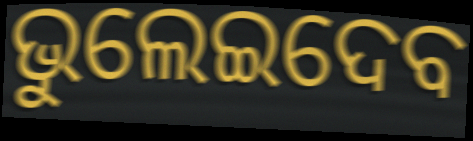
ଭୁଲେଇଦେବ